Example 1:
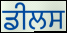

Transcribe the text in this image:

ਡੀਲਸ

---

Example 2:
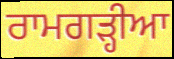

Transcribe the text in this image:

ਰਾਮਗਡ਼੍ਹੀਆ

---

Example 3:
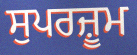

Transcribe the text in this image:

ਸੁਪਰਜ਼ੂਮ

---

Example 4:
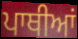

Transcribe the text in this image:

ਪਾਥੀਆਂ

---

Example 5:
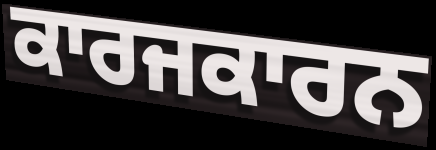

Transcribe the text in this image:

ਕਾਰਜਕਾਰਨ